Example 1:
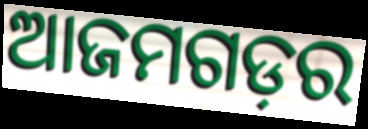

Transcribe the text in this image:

ଆଜମଗଡ଼ର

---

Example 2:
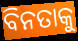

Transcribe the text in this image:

ବିନତାକୁ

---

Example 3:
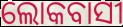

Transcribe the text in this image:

ଲୋକବାସୀ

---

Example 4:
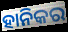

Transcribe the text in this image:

ହାନିକର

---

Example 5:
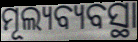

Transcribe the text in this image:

ମୂଲ୍ୟବ୍ୟବସ୍ଥା